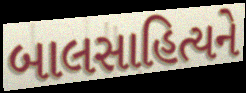
બાલસાહિત્યને